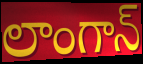
లాంగాన్